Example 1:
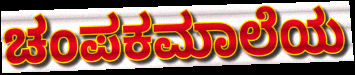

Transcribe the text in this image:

ಚಂಪಕಮಾಲೆಯ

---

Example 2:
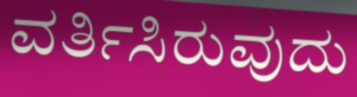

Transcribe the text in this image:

ವರ್ತಿಸಿರುವುದು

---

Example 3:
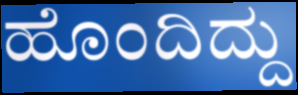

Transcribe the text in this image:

ಹೊಂದಿದ್ದು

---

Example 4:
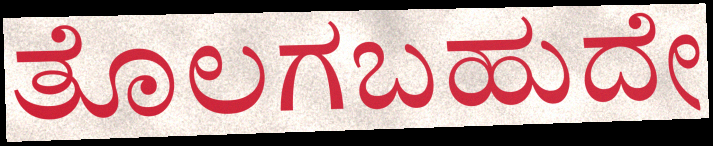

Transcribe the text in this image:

ತೊಲಗಬಹುದೇ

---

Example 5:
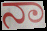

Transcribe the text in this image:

ನಾ